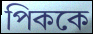
পিককে